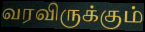
வரவிருக்கும்